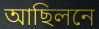
আছিলনে